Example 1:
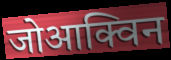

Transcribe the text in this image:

जोआक्विन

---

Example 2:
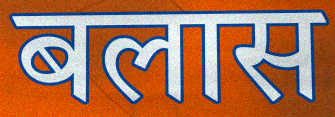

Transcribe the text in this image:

बलास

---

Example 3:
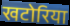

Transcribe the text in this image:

खटोरिया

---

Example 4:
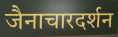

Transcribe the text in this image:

जैनाचारदर्शन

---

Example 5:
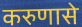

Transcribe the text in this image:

करुणासे